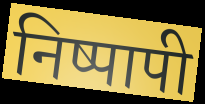
निष्पापी